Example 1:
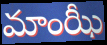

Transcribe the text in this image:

మాంఝీ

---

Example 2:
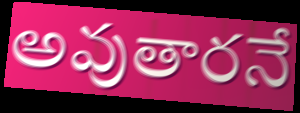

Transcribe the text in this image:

అవుతారనే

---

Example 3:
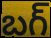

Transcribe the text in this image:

బగ్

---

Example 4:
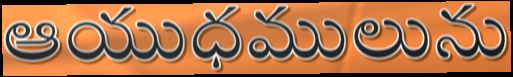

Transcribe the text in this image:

ఆయుధములును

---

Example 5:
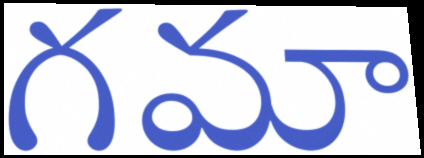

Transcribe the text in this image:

గమా